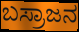
ಬಸ್ರಾಜನ